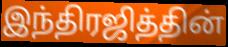
இந்திரஜித்தின்